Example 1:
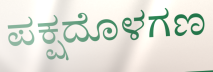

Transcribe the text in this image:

ಪಕ್ಷದೊಳಗಣ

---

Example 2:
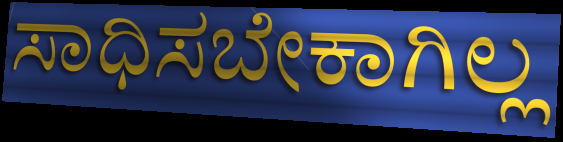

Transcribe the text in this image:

ಸಾಧಿಸಬೇಕಾಗಿಲ್ಲ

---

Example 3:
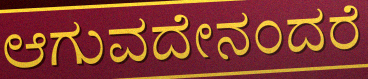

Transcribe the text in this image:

ಆಗುವದೇನಂದರೆ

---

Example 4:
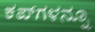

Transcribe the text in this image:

ಕಪ್‌ಗಳನ್ನೂ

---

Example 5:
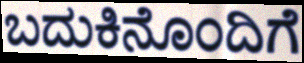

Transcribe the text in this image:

ಬದುಕಿನೊಂದಿಗೆ